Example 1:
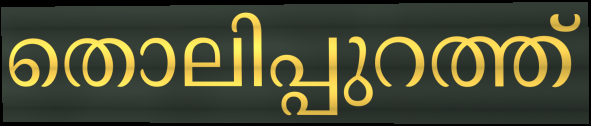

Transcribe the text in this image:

തൊലിപ്പുറത്ത്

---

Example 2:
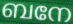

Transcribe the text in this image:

ബനേ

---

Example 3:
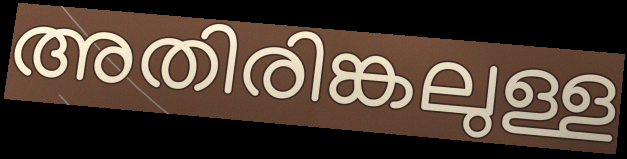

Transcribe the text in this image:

അതിരിങ്കലുള്ള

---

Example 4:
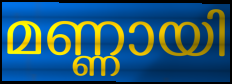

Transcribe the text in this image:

മണ്ണായി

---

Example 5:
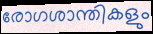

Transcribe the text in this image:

രോഗശാന്തികളും